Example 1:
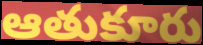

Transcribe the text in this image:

ఆతుకూరు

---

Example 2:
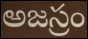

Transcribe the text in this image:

అజస్రం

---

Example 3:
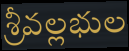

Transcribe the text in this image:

శ్రీవల్లభుల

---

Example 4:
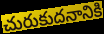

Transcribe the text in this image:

చురుకుదనానికి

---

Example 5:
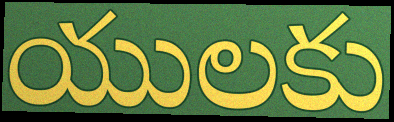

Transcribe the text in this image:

యులకు